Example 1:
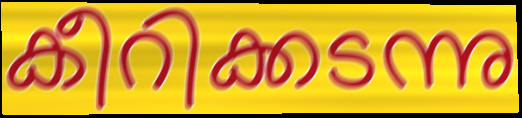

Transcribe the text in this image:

കീറിക്കടന്നു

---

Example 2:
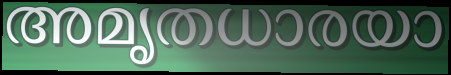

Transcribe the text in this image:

അമൃതധാരയാ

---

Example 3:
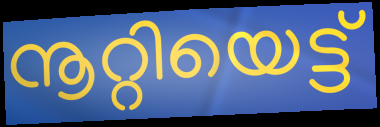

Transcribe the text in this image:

നൂറ്റിയെട്ട്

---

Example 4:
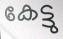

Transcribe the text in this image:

കേട്ടു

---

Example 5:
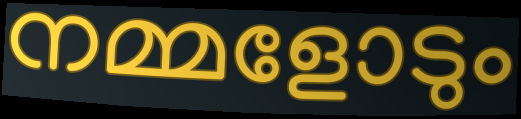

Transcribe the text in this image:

നമ്മളോടും